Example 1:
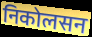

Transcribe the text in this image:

निकोलसन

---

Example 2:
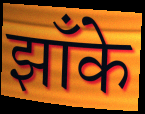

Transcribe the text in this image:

झाँके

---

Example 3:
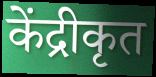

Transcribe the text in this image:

केंद्रीकृत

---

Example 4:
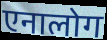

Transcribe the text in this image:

एनालोग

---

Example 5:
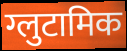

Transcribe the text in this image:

ग्लुटामिक